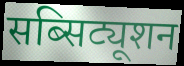
सब्सिट्यूशन